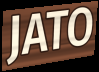
JATO